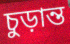
চুড়ান্ত